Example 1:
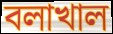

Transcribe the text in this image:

বলাখাল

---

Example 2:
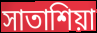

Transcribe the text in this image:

সাতাশিয়া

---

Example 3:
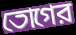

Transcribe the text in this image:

তোগের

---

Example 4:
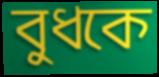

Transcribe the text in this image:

বুধকে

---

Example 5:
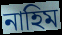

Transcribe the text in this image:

নাহিম